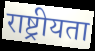
राष्ट्रीयता